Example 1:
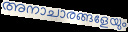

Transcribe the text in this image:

അനാചാരങ്ങളേയും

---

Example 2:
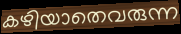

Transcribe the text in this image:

കഴിയാതെവരുന്ന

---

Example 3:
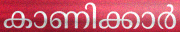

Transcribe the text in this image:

കാണിക്കാർ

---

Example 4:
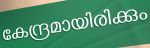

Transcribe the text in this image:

കേന്ദ്രമായിരിക്കും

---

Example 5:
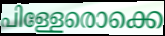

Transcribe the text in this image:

പിള്ളേരൊക്കെ